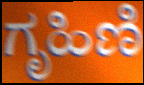
ಗೃಹಿಣಿ